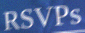
RSVPs